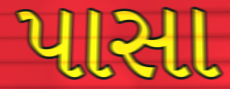
પાસા